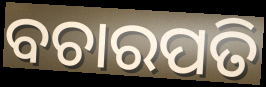
ବଚାରପତି